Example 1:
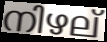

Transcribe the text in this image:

നിഴല്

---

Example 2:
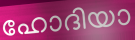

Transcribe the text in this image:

ഹോദിയാ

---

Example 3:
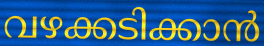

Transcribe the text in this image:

വഴക്കടിക്കാൻ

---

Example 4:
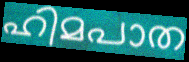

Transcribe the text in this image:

ഹിമപാത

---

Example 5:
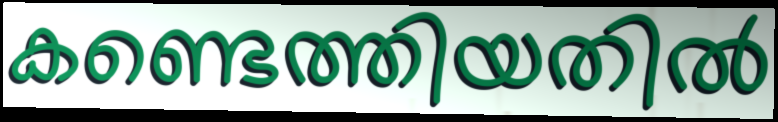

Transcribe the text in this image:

കണ്ടെത്തിയതിൽ